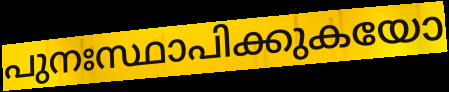
പുനഃസ്ഥാപിക്കുകയോ